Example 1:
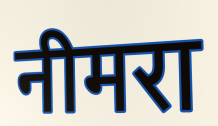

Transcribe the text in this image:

नीमरा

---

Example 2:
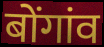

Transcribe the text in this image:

बोंगांव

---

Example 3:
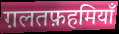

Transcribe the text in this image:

ग़लतफ़हमियाँ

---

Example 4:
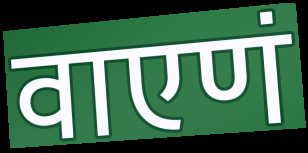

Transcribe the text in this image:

वाएणं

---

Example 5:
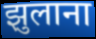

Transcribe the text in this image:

झुलाना